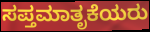
ಸಪ್ತಮಾತೃಕೆಯರು